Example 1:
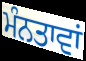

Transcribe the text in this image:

ਮੰਨਤਾਵਾਂ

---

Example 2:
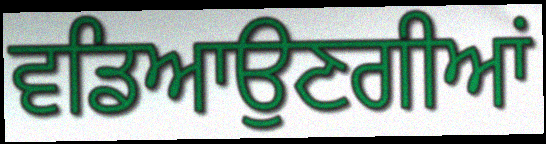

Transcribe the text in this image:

ਵਡਿਆਉਣਗੀਆਂ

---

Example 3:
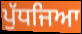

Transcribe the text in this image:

ਪੁੱਧਜਿਆ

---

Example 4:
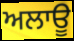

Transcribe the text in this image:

ਅਲਾਊ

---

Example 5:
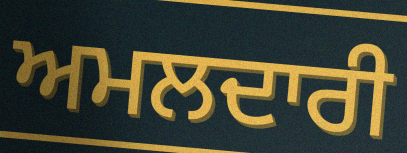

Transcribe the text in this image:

ਅਮਲਦਾਰੀ